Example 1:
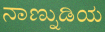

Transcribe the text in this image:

ನಾಣ್ನುಡಿಯ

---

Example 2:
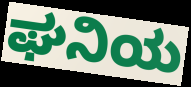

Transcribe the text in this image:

ಘನಿಯ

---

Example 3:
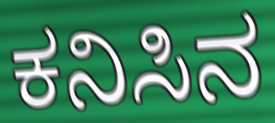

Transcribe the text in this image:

ಕನಿಸಿನ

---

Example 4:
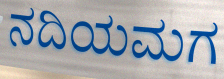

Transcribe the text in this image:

ನದಿಯಮಗ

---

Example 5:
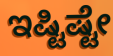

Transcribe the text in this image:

ಇಷ್ಟಿಷ್ಟೇ